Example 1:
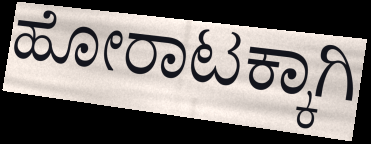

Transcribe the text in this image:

ಹೋರಾಟಕ್ಕಾಗಿ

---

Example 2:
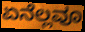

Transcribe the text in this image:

ಏನೆಲ್ಲವೂ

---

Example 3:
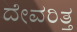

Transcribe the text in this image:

ದೇವರಿತ್ತ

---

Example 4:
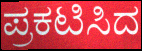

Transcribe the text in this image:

ಪ್ರಕಟಿಸಿದ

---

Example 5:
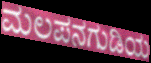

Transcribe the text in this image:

ಮಲಪನಗುಡಿಯ